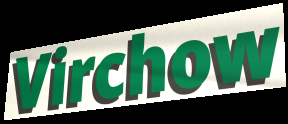
Virchow